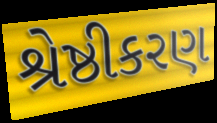
શ્રેષ્ઠીકરણ